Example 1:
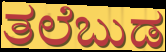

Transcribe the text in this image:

ತಲೆಬುಡ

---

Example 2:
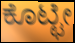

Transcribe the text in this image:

ಕೊಟ್ಟೇ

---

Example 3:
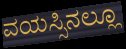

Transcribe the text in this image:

ವಯಸ್ಸಿನಲ್ಲೂ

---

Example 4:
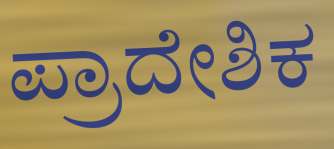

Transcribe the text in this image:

ಪ್ರಾದೇಶಿಕ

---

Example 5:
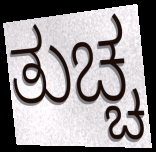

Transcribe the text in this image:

ತುಚ್ಚ